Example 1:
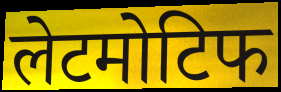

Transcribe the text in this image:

लेटमोटिफ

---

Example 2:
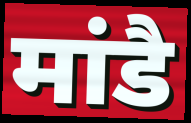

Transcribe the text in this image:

मांडै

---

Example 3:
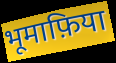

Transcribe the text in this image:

भूमाफ़िया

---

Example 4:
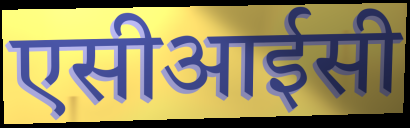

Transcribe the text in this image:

एसीआईसी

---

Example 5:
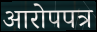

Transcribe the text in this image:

आरोपपत्र